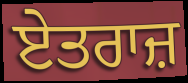
ਏਤਰਾਜ਼